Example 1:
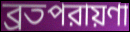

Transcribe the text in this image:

ব্রতপরায়ণা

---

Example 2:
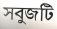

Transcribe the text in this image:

সবুজটি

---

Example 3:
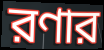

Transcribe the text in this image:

রণার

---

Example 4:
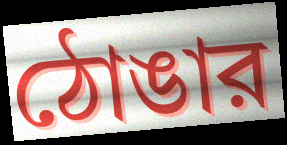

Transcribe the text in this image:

ঠোঙার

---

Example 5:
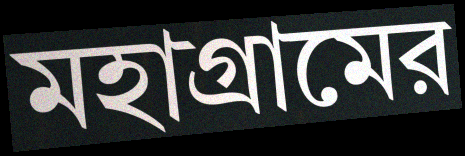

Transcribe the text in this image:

মহাগ্রামের